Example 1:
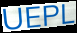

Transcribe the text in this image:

UEPL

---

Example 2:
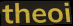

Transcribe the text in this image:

theoi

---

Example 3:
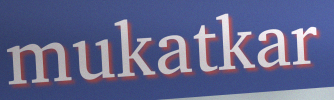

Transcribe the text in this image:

mukatkar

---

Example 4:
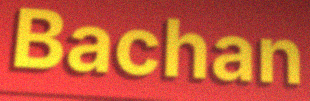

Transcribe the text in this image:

Bachan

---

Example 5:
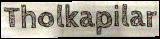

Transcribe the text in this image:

Tholkapilar